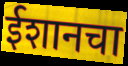
ईशानचा